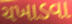
ચખાડવા